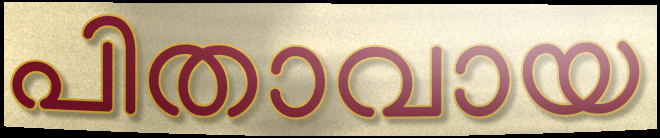
പിതാവായ